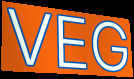
VEG